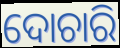
ଦୋଚାରି